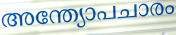
അന്ത്യോപചാരം